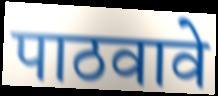
पाठवावे